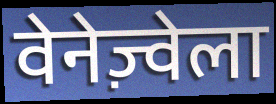
वेनेज़्वेला